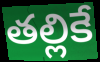
తల్లికే